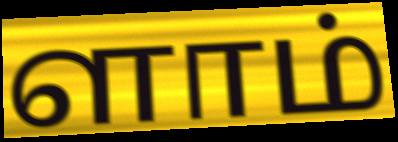
ளாம்